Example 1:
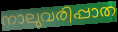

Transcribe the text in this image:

നാലുവരിപ്പാത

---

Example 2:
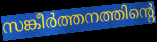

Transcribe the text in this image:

സങ്കീർത്തനത്തിന്റെ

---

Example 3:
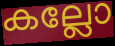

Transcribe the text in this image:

കല്ലോ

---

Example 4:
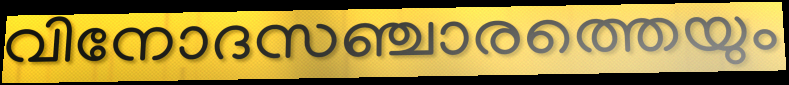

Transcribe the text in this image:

വിനോദസഞ്ചാരത്തെയും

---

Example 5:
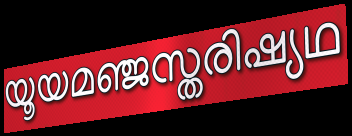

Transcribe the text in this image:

യൂയമഞ്ജസ്തരിഷ്യഥ